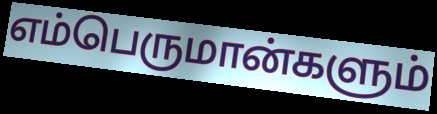
எம்பெருமான்களும்